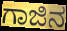
ಗಾಜಿನ